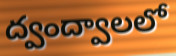
ద్వంద్వాలలో